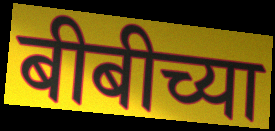
बीबीच्या